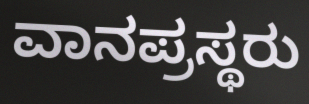
ವಾನಪ್ರಸ್ಥರು